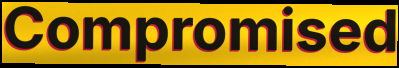
Compromised